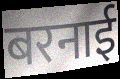
बरनाई